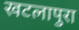
खटलापुरा